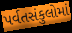
પર્વતસંકુલોમાં